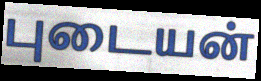
புடையன்